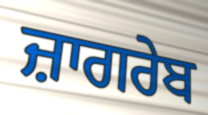
ਜ਼ਾਗਰੇਬ